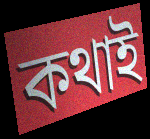
কথাই